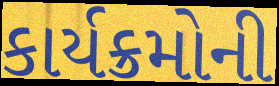
કાર્યક્રમોની